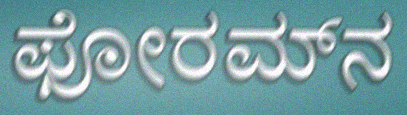
ಫೋರಮ್‌ನ